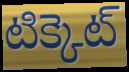
టిక్కెట్